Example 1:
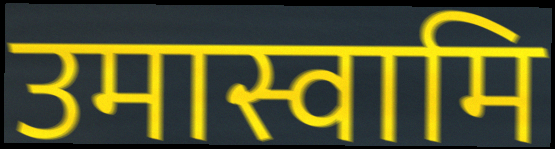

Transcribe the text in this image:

उमास्वामि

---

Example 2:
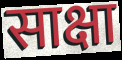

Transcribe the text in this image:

साक्षा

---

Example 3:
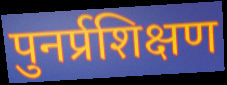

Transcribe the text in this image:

पुनर्प्रशिक्षण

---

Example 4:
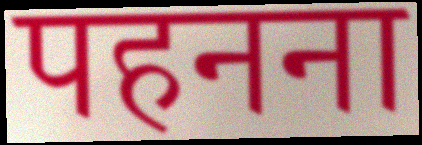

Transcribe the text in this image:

पहनना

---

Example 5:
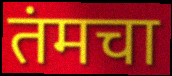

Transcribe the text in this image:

तंमचा